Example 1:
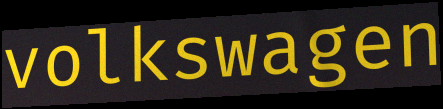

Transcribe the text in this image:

volkswagen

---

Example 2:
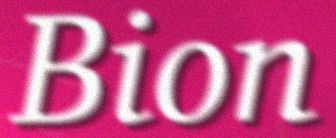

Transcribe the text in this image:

Bion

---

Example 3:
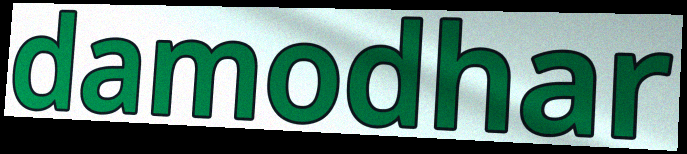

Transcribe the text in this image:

damodhar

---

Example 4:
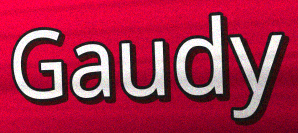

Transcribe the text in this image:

Gaudy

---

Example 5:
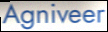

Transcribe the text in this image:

Agniveer